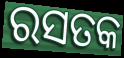
ରସତକ